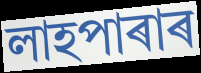
লাহপাৰাৰ